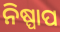
ନିଷ୍ପାପ